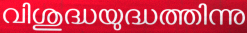
വിശുദ്ധയുദ്ധത്തിന്നു